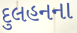
દુલહનના